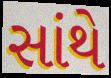
સાંથે